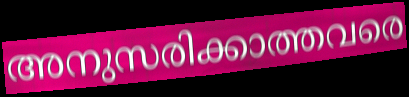
അനുസരിക്കാത്തവരെ